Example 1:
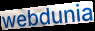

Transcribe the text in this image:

webdunia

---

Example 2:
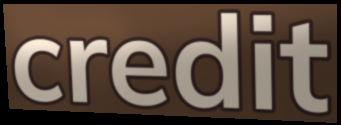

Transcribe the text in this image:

credit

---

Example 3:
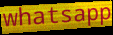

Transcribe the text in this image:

whatsapp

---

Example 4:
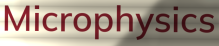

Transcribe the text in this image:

Microphysics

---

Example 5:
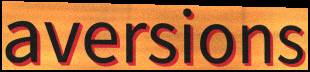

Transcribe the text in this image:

aversions